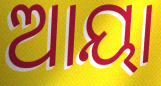
ଆୟା